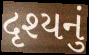
દૃશ્યનું